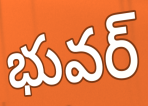
భువర్